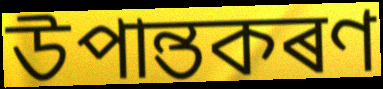
উপান্তকৰণ